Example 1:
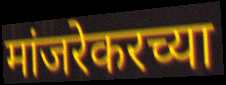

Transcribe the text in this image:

मांजरेकरच्या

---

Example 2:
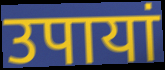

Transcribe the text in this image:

उपायां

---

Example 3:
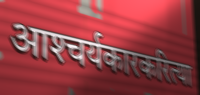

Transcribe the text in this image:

आश्‍चर्यकारकरित्या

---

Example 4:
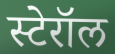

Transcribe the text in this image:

स्टेरॉल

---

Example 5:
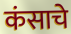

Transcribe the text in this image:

कंसाचे